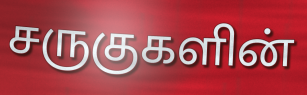
சருகுகளின்